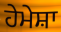
ਹੇਮੇਸ਼ਾ